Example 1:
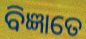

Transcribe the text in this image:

ବିଜ୍ଞାତେ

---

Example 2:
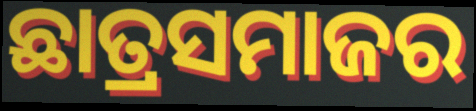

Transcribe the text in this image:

ଛାତ୍ରସମାଜର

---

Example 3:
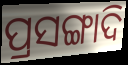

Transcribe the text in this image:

ପ୍ରସଙ୍ଗାଦି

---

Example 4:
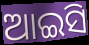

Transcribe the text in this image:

ଆଇସି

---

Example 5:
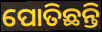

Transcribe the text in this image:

ପୋତିଛନ୍ତି